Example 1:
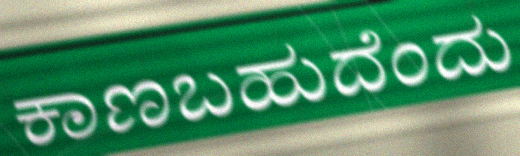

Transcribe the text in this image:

ಕಾಣಬಹುದೆಂದು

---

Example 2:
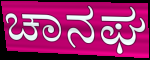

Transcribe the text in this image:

ಚಾನಘ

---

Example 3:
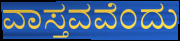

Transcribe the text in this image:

ವಾಸ್ತವವೆಂದು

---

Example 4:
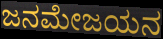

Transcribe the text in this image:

ಜನಮೇಜಯನ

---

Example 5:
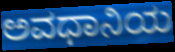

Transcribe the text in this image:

ಅವಧಾನಿಯ